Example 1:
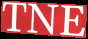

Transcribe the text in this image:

TNE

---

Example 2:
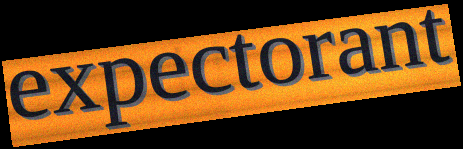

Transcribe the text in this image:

expectorant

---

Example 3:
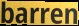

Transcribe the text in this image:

barren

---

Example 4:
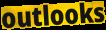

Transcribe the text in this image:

outlooks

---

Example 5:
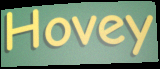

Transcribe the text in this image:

Hovey